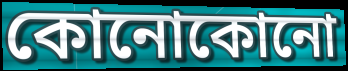
কোনোকোনো